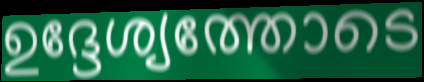
ഉദ്ദേശ്യത്തോടെ